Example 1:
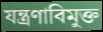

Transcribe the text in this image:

যন্ত্রণাবিমুক্ত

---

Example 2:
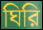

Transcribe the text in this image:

ঘিরি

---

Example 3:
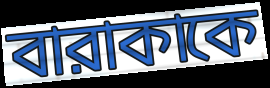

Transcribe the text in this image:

বারাকাকে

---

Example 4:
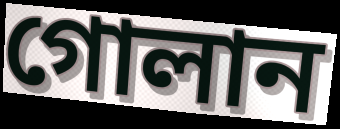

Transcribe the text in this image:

গোলান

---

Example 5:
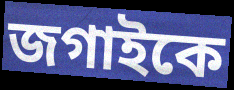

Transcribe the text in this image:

জগাইকে